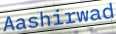
Aashirwad